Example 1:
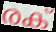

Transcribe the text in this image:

രക്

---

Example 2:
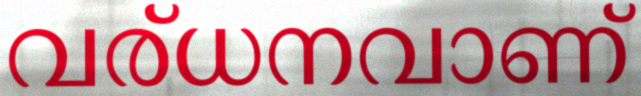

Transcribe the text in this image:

വര്ധനവാണ്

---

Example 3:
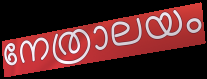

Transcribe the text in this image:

നേത്രാലയം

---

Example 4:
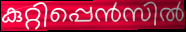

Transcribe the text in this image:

കുറ്റിപ്പെൻസിൽ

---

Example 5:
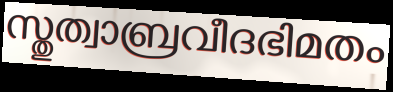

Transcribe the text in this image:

സ്തുത്വാബ്രവീദഭിമതം